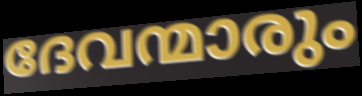
ദേവന്മാരും